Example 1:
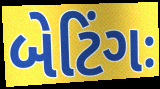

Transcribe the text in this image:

બેટિંગઃ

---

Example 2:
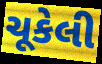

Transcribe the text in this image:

ચૂકેલી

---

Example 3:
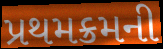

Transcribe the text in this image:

પ્રથમક્રમની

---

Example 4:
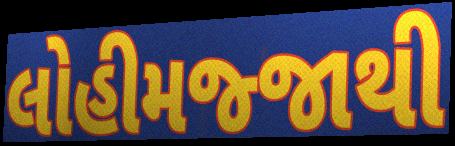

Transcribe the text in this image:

લોહીમજ્જાથી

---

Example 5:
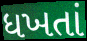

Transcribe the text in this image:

ધખતાં